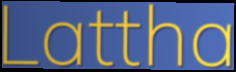
Lattha